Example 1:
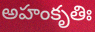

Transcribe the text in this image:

అహంకృతిః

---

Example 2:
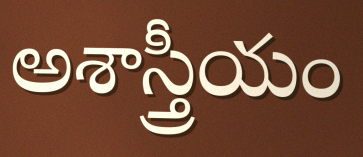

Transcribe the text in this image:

అశాస్త్రీయం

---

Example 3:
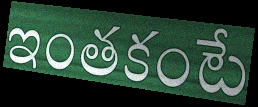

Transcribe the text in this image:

ఇంతకంటే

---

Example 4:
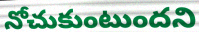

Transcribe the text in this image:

నోచుకుంటుందని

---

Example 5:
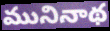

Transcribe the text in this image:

మునినాథ